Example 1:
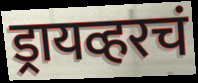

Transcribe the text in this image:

ड्रायव्हरचं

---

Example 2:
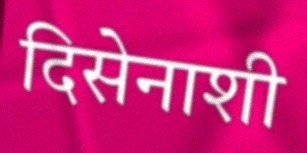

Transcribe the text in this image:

दिसेनाशी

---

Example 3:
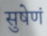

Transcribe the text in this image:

सुषेणं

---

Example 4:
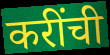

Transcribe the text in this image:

करींची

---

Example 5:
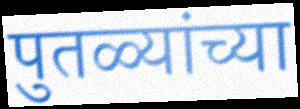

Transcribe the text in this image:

पुतळ्यांच्या